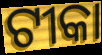
ଟୀକା